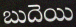
బుదెయి